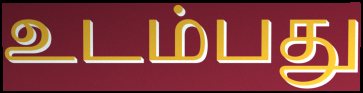
உடம்பது